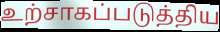
உற்சாகப்படுத்திய